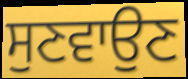
ਸੁਣਵਾਉਣ